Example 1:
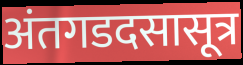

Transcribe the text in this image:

अंतगडदसासूत्र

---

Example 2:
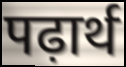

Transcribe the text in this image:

पढ़ार्थ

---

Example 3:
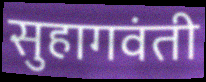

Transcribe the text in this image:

सुहागवंती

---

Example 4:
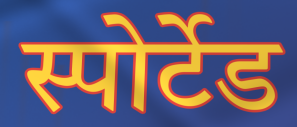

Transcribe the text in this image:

स्पोर्टेड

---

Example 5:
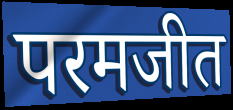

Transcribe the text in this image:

परमजीत